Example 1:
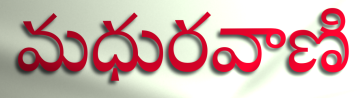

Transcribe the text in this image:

మధురవాణి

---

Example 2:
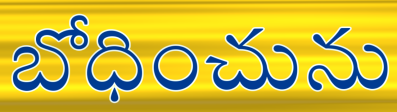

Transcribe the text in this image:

బోధించును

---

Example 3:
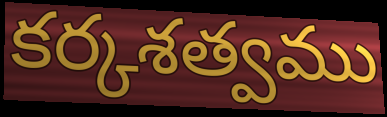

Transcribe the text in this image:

కర్కశత్వము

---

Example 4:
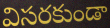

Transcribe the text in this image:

విసరకుండా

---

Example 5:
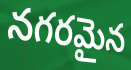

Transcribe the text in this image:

నగరమైన